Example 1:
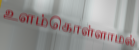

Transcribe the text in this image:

உளம்கொள்ளாமல்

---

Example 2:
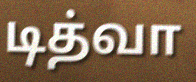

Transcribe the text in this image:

டித்வா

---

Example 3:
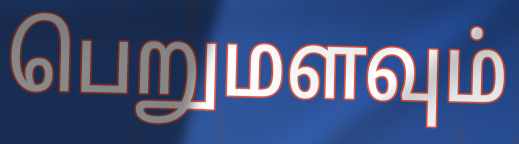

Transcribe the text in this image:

பெறுமளவும்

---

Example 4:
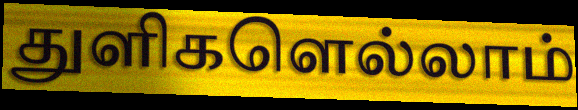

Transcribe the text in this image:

துளிகளெல்லாம்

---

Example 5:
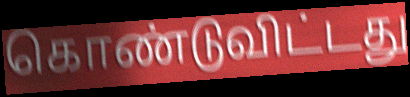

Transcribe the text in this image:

கொண்டுவிட்டது